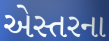
એસ્તરના